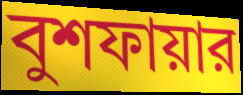
বুশফায়ার